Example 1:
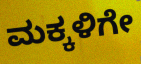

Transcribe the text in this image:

ಮಕ್ಕಳಿಗೇ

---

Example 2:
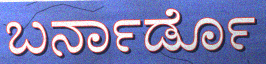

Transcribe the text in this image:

ಬರ್ನಾರ್ಡೊ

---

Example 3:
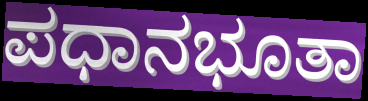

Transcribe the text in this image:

ಪಧಾನಭೂತಾ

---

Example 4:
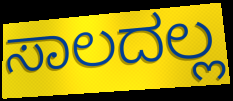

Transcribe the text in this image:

ಸಾಲದಲ್ಲ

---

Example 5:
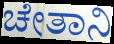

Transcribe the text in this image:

ಚೇತಾನಿ